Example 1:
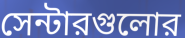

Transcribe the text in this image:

সেন্টারগুলোর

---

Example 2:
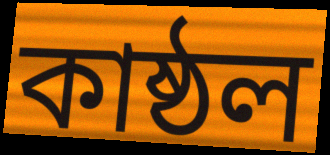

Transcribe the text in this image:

কাষ্ঠল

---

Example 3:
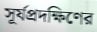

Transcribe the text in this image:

সূর্যপ্রদক্ষিণের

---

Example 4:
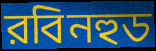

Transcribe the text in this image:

রবিনহুড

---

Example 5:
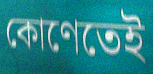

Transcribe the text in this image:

কোণেতেই